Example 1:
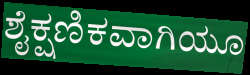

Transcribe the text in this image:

ಶೈಕ್ಷಣಿಕವಾಗಿಯೂ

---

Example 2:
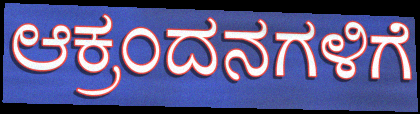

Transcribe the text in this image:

ಆಕ್ರಂದನಗಳಿಗೆ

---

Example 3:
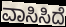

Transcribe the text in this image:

ವಾಸಿಸಿದೆ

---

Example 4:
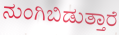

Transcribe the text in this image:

ನುಂಗಿಬಿಡುತ್ತಾರೆ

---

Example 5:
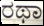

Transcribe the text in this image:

ರಥಾ